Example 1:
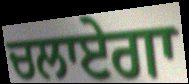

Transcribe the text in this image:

ਚਲਾਏਗਾ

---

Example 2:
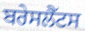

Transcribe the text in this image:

ਬਰੇਸਲੈੱਟਸ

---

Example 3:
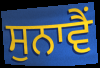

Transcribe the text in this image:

ਸੁਨਾਵੈਂ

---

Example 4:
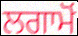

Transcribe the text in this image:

ਲਗਾਮੋਂ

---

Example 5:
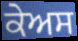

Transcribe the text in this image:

ਕੇਅਸ